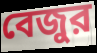
বেজুর